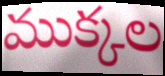
ముక్కల